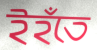
ইহঁতে